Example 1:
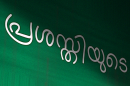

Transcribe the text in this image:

പ്രശസ്തിയുടെ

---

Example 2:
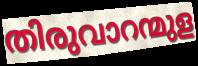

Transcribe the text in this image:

തിരുവാറന്മുള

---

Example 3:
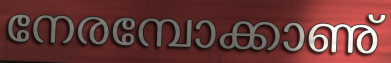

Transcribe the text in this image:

നേരമ്പോക്കാണു്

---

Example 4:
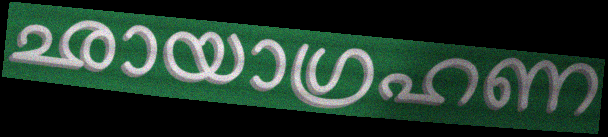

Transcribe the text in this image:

ഛായാഗ്രഹണ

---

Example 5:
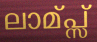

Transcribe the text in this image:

ലാമ്പ്സ്